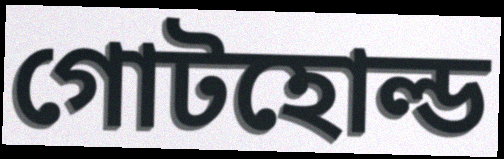
গোটহোল্ড